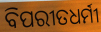
ବିପରୀତଧର୍ମୀ